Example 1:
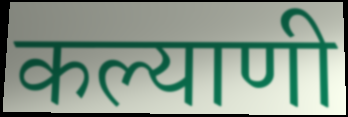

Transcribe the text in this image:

कल्याणी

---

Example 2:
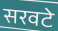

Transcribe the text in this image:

सरवटे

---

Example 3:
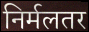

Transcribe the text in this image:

निर्मलतर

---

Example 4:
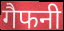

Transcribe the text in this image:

गैफनी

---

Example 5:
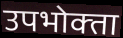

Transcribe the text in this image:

उपभोक्‍ता